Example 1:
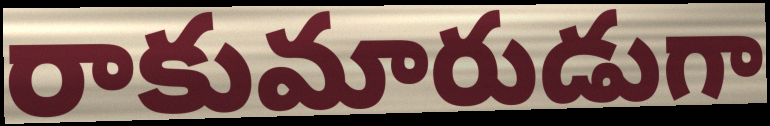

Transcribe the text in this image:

రాకుమారుడుగా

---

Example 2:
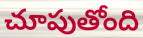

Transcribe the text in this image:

చూపుతోంది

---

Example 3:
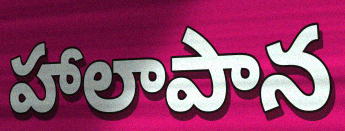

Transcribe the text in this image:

హాలాపాన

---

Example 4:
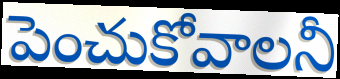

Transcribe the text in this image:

పెంచుకోవాలనీ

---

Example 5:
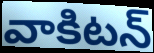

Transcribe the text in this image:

వాకిటన్